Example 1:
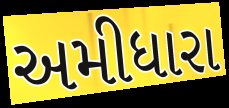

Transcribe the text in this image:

અમીધારા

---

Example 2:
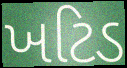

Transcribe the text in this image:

ખટિડ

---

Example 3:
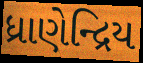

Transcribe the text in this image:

ધ્રાણેન્દ્રિય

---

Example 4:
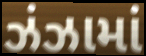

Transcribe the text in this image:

ઝંઝામાં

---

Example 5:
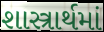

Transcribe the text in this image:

શાસ્ત્રાર્થમાં